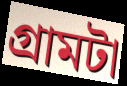
গ্রামটা